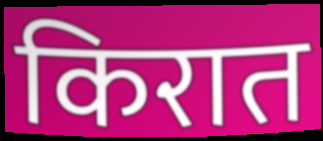
किरात